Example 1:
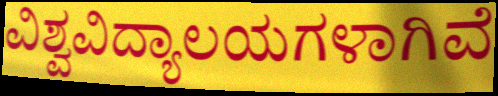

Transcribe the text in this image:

ವಿಶ್ವವಿದ್ಯಾಲಯಗಳಾಗಿವೆ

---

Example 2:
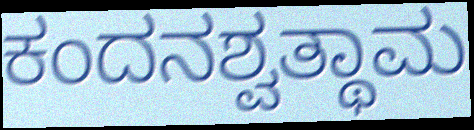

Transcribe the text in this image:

ಕಂದನಶ್ವತ್ಥಾಮ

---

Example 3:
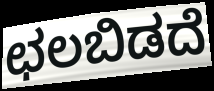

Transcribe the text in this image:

ಛಲಬಿಡದೆ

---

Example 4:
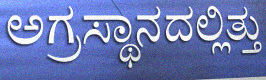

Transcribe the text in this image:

ಅಗ್ರಸ್ಥಾನದಲ್ಲಿತ್ತು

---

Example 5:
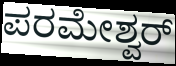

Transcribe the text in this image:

ಪರಮೇಶ್ವರ್